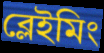
ব্লেইমিং